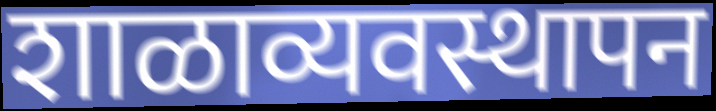
शाळाव्यवस्थापन